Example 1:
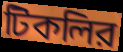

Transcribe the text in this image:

টিকলির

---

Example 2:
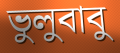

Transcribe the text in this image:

ভুলুবাবু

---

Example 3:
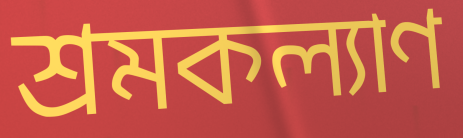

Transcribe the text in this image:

শ্রমকল্যাণ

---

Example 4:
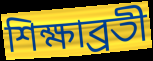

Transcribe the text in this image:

শিক্ষাব্রতী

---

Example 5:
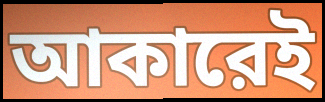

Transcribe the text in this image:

আকারেই